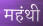
महंथी